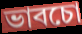
ভাবচো